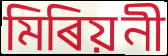
মিৰিয়নী